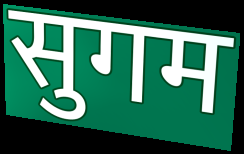
सुगम